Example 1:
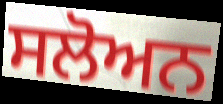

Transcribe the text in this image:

ਸਲੋਅਨ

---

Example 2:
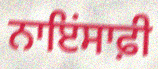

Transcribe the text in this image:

ਨਾਇਂਸਾਫ਼ੀ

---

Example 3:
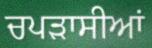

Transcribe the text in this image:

ਚਪੜਾਸੀਆਂ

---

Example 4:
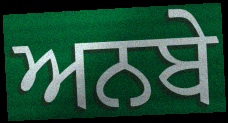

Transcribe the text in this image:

ਅਨਬੇ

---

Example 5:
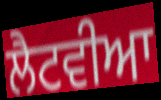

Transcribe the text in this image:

ਲੈਟਵੀਆ